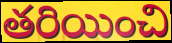
తరియించి